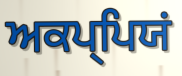
ਅਕਪ੍ਪਿਯਂ